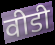
वीडी